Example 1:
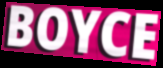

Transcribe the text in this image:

BOYCE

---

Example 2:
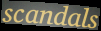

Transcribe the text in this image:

scandals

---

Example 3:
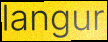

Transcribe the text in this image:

langur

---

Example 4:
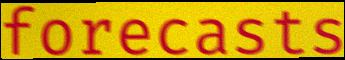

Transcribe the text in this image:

forecasts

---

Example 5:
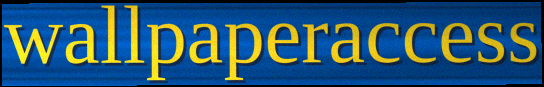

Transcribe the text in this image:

wallpaperaccess